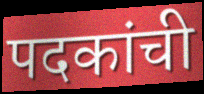
पदकांची